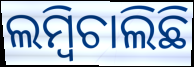
ଲମ୍ବିଚାଲିଛି